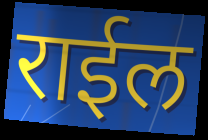
राईल